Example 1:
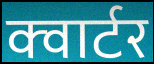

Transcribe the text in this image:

क्‍वार्टर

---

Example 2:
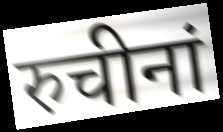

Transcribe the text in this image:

रुचीनां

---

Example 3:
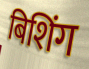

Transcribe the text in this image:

बिशिंग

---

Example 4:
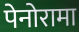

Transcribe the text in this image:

पेनोरामा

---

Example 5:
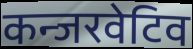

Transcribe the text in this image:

कन्जरवेटिव